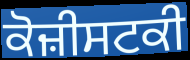
ਕੋਜ਼ੀਸਟਕੀ